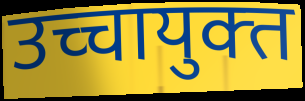
उच्‍चायुक्‍त